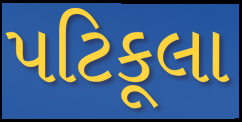
પટિકૂલા